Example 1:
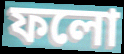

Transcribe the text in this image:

ফলো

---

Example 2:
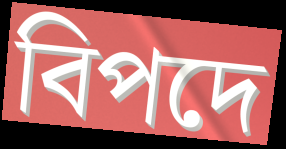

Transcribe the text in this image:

বিপদে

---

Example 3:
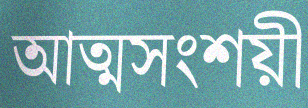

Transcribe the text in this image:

আত্মসংশয়ী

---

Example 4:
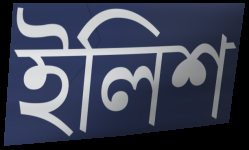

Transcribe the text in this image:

ইলিশ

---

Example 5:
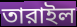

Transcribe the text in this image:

তারাইল